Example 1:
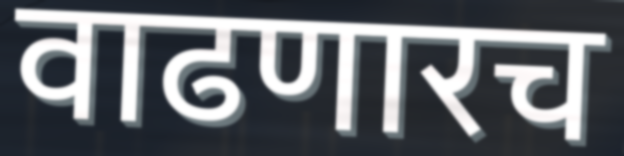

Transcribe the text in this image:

वाढणारच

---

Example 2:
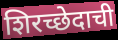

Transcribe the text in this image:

शिरच्छेदाची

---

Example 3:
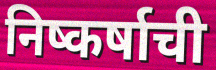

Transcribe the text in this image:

निष्कर्षाची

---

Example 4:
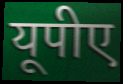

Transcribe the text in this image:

यूपीए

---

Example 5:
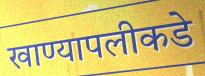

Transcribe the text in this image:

खाण्यापलीकडे